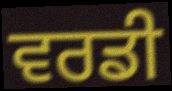
ਵਰਡੀ